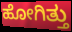
ಹೋಗಿತ್ತು